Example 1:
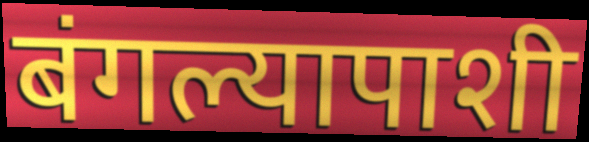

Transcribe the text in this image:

बंगल्यापाशी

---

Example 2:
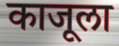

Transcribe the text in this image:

काजूला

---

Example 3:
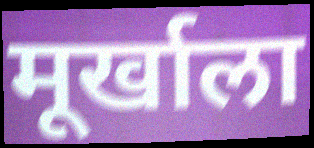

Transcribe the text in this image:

मूर्खाला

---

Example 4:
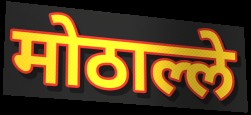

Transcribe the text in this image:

मोठाल्ले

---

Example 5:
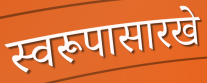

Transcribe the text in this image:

स्वरूपासारखे